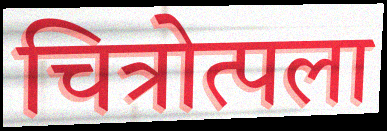
चित्रोत्पला